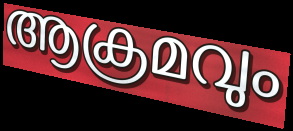
ആക്രമവും